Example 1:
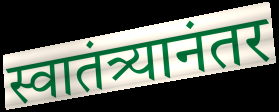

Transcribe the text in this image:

स्वातंत्र्यानंतर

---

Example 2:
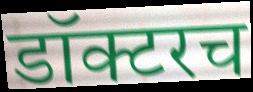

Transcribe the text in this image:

डॉक्टरच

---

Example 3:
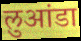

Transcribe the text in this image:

लुआंडा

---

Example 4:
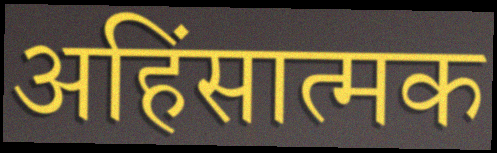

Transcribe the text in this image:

अहिंसात्मक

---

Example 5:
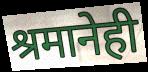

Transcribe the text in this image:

श्रमानेही